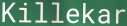
Killekar